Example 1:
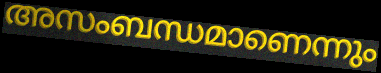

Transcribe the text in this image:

അസംബന്ധമാണെന്നും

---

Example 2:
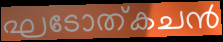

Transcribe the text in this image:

ഘടോത്കചൻ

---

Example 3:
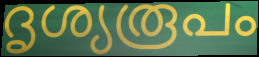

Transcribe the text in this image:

ദൃശ്യരൂപം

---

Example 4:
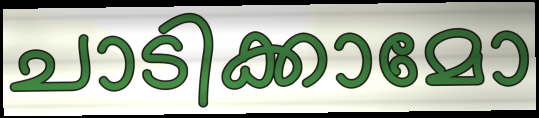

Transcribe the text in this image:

ചാടിക്കാമോ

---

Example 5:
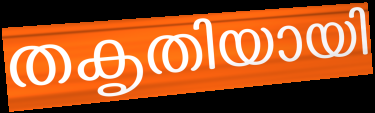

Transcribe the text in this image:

തകൃതിയായി